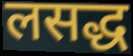
लसद्ध